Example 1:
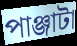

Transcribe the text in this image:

পাঞ্জাটা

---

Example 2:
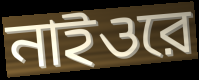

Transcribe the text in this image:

নাইওরে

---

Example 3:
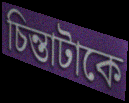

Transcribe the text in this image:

চিন্তাটাকে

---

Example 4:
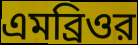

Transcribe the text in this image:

এমব্রিওর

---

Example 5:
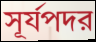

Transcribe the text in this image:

সূর্যপদর